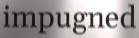
impugned